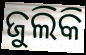
ଜୁଲିକି